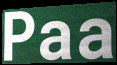
Paa